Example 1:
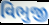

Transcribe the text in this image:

વિભુજી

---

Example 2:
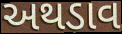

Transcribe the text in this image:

અથડાવ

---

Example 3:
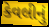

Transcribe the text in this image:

કેવલીનું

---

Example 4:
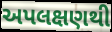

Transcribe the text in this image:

અપલક્ષણથી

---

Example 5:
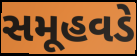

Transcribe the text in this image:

સમૂહવડે